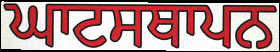
ਘਾਟਸਥਾਪਨ